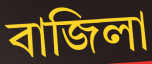
বাজিলা